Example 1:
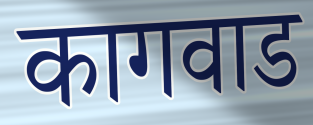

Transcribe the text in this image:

कागवाड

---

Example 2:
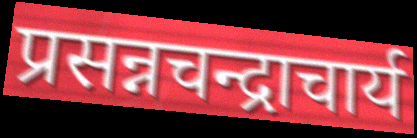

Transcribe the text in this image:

प्रसन्नचन्द्राचार्य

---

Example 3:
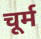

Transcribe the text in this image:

चूर्म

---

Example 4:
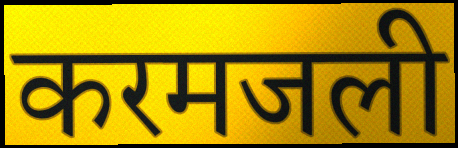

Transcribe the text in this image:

करमजली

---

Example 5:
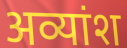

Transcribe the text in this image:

अव्यांश